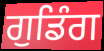
ਗੁਡਿੰਗ